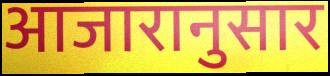
आजारानुसार